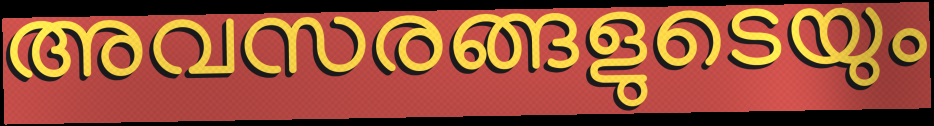
അവസരങ്ങളുടെയും